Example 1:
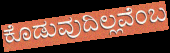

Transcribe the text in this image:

ಕೊಡುವುದಿಲ್ಲವೆಂಬ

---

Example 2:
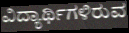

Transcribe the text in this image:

ವಿದ್ಯಾರ್ಥಿಗಳಿರುವ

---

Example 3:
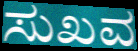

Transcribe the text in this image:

ಸುಖವ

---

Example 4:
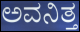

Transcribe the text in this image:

ಅವನಿತ್ತ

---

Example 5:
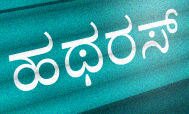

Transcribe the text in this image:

ಹಥರಸ್